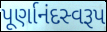
પૂર્ણાનંદસ્વરૂપ